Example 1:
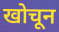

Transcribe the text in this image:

खोचून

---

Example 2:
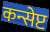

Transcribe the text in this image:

कन्सेप्ट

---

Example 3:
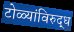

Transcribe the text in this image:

टोळ्यांविरुद्ध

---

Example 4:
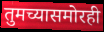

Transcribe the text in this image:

तुमच्यासमोरही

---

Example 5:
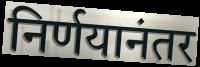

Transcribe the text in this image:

निर्णयानंतर